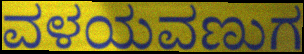
ವಳಯವಣುಗ